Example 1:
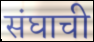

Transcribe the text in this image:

संघाची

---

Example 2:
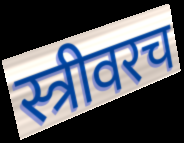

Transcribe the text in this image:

स्त्रीवरच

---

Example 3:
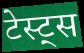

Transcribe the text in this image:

टेस्ट्स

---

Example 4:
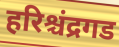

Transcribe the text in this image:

हरिश्चंद्रगड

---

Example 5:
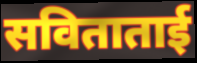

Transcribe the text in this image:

सविताताई